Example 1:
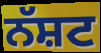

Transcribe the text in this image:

ਨੱਸ਼ਟ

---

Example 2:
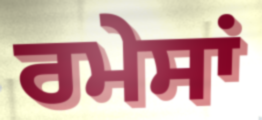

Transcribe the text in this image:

ਰਮੇਸਾਂ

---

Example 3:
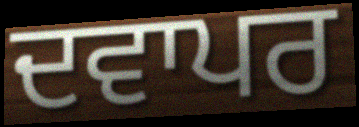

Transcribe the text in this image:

ਦਵਾਪਰ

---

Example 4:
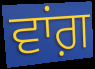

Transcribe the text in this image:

ਵਾਂਗ਼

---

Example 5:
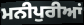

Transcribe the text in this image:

ਮਨੀਪੁਰੀਆਂ